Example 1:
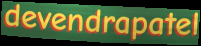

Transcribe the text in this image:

devendrapatel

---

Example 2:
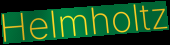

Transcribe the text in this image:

Helmholtz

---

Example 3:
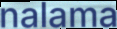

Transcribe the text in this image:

nalama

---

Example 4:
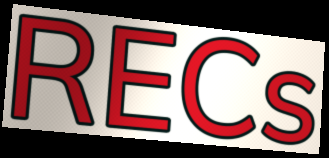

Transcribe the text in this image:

RECs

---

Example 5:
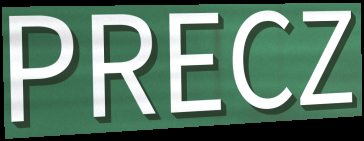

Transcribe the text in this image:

PRECZ